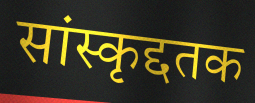
सांस्कृद्दतक